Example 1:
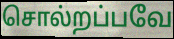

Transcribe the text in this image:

சொல்றப்பவே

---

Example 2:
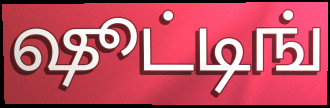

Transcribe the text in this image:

ஷூட்டிங்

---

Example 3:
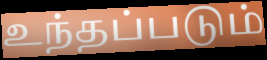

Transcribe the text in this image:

உந்தப்படும்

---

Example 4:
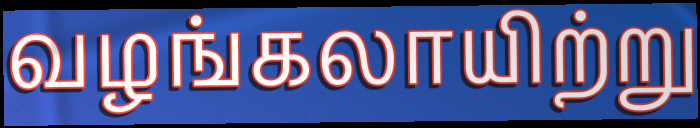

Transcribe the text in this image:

வழங்கலாயிற்று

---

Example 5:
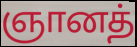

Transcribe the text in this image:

ஞானத்